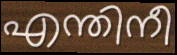
എന്തിനീ